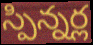
స్పిన్నర్ల